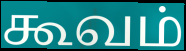
கூவம்